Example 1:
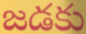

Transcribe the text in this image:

జడకు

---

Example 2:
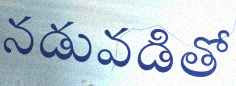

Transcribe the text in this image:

నడువడితో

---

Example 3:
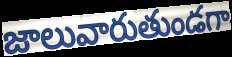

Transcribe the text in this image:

జాలువారుతుండగా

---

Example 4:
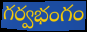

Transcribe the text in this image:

గర్వభంగం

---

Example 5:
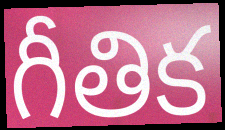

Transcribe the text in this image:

గీతిక